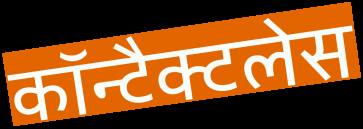
कॉन्टैक्टलेस